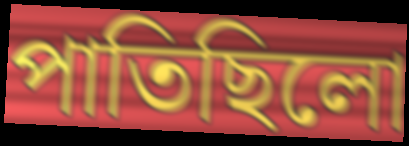
পাতিছিলো